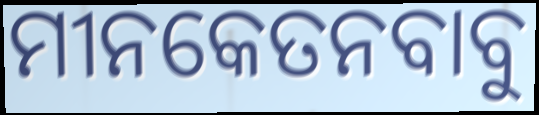
ମୀନକେତନବାବୁ